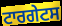
ਟਾਰਗੇਟਸ